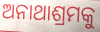
ଅନାଥାଶ୍ରମକୁ